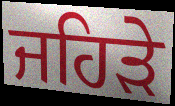
ਜਹਿੜੇ